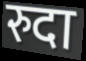
रुदा